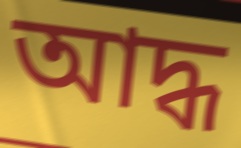
আদ্ধ